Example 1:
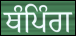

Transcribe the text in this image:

ਥੰਪਿੰਗ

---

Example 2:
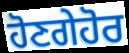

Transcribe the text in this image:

ਹੋਣਗੇਹੋਰ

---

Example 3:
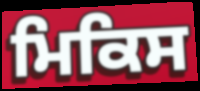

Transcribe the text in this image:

ਮਿਕਿਸ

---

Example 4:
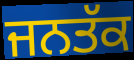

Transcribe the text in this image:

ਜਨਤੱਕ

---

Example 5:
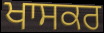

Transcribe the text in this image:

ਖਾਸਕਰ